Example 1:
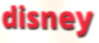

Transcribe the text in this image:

disney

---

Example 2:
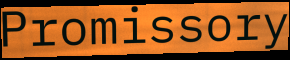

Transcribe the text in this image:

Promissory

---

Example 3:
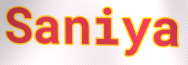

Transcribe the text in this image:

Saniya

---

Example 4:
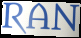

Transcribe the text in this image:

RAN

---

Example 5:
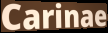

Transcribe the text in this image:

Carinae